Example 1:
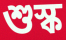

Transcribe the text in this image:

শুস্ক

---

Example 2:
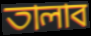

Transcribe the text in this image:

তালাব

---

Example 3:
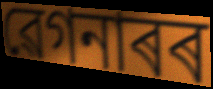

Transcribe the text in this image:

ৱেগনাৰৰ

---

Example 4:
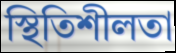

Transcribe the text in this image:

স্থিতিশীলতা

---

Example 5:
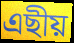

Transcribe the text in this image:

এছীয়